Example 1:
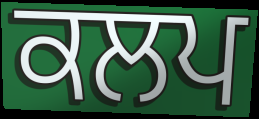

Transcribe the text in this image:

ਕਲਪ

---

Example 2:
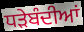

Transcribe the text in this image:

ਧੜੇਬੰਦੀਆਂ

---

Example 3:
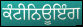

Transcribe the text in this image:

ਕੰਟੀਨਿਊਇੰਗ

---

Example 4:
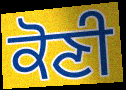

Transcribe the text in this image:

ਕੋਣੀ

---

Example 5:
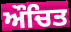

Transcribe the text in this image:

ਔਚਿਤ